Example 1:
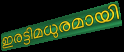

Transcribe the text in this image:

ഇരട്ടിമധുരമായി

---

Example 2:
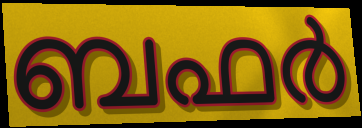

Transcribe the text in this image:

ബഫർ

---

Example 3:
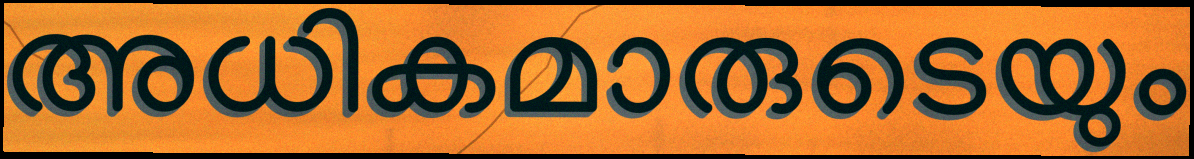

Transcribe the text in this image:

അധികമാരുടെയും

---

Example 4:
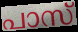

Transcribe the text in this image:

പാസ്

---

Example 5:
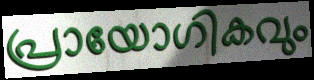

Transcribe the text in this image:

പ്രായോഗികവും